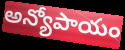
అన్యోపాయం